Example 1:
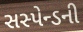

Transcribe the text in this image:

સસ્પેન્ડની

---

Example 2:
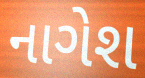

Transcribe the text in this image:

નાગેશ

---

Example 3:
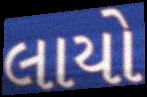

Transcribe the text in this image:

લાયો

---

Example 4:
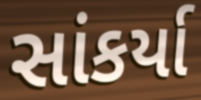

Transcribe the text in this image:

સાંકર્યા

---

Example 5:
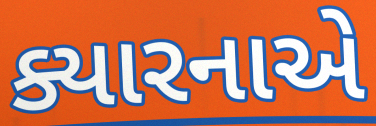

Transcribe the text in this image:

ક્યારનાએ